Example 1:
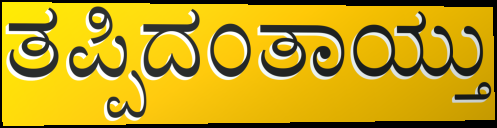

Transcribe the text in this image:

ತಪ್ಪಿದಂತಾಯ್ತು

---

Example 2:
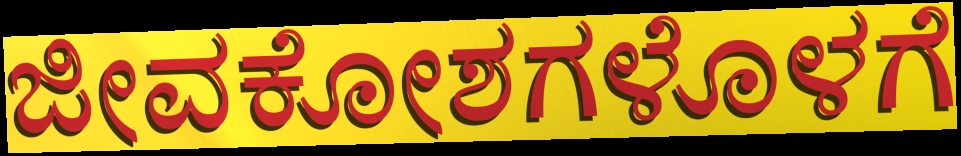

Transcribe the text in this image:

ಜೀವಕೋಶಗಳೊಳಗೆ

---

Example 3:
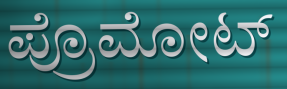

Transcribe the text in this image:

ಪ್ರೊಮೋಟ್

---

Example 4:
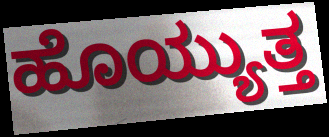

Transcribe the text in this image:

ಹೊಯ್ಯುತ್ತ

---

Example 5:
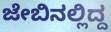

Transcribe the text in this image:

ಜೇಬಿನಲ್ಲಿದ್ದ